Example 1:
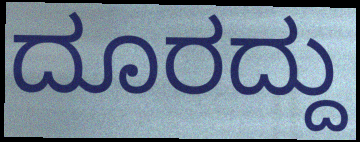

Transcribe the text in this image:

ದೂರದ್ದು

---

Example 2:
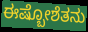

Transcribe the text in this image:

ಈಷ್ಬೋಶೆತನು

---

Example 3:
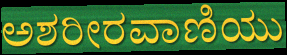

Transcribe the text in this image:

ಅಶರೀರವಾಣಿಯು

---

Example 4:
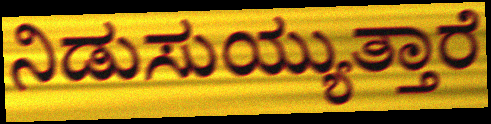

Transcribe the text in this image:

ನಿಡುಸುಯ್ಯುತ್ತಾರೆ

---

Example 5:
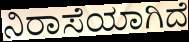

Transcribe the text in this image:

ನಿರಾಸೆಯಾಗಿದೆ